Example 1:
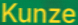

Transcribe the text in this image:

Kunze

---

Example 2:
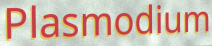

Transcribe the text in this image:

Plasmodium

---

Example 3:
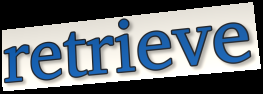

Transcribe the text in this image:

retrieve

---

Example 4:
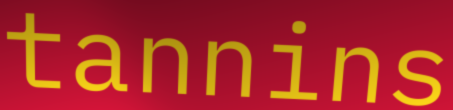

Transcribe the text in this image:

tannins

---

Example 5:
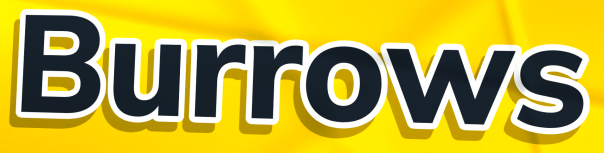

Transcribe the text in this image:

Burrows